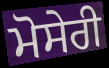
ਮੋਸੇਰੀ